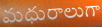
మధురాలుగా